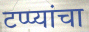
टप्प्यांचा